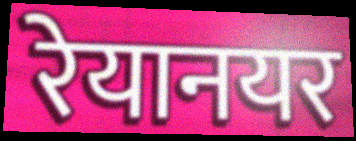
रेयानयर